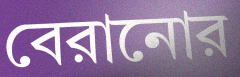
বেরানোর